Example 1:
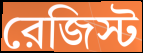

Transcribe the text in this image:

রেজিস্ট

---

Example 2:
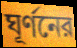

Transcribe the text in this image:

ঘূর্ণনের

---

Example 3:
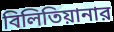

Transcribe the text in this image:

বিলিতিয়ানার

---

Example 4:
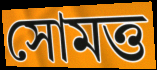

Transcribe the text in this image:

সোমত্ত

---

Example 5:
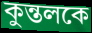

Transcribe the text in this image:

কুন্তলকে